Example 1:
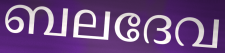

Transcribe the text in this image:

ബലദേവ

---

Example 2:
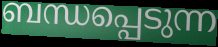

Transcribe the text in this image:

ബന്ധപ്പെടുന്ന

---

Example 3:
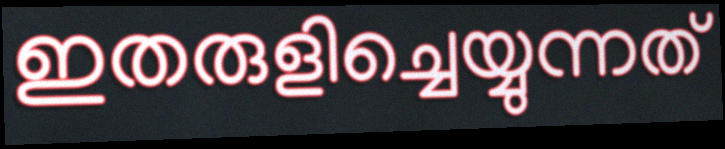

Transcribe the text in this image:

ഇതരുളിച്ചെയ്യുന്നത്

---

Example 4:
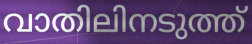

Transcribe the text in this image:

വാതിലിനടുത്ത്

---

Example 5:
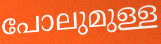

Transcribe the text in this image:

പോലുമുള്ള